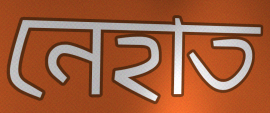
নেহাত